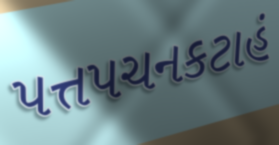
પત્તપચનકટાહં